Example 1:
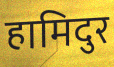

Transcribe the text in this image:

हामिदुर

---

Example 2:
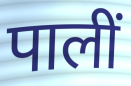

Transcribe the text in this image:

पालीं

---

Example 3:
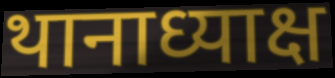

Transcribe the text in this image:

थानाध्याक्ष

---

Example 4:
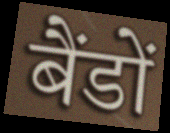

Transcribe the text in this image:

बैंडों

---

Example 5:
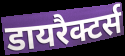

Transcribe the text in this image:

डायरैक्टर्स